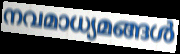
നവമാധ്യമങ്ങൾ